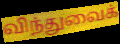
விந்துவைக்